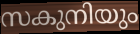
സകുനിയും